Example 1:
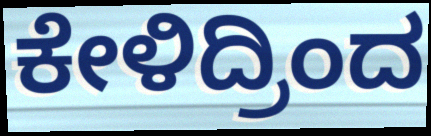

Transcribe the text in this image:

ಕೇಳಿದ್ರಿಂದ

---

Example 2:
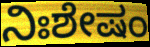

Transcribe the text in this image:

ನಿಃಶೇಷಂ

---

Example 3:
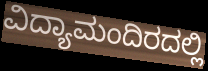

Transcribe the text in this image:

ವಿದ್ಯಾಮಂದಿರದಲ್ಲಿ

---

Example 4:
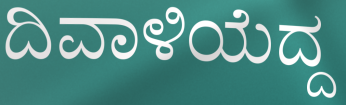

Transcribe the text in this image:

ದಿವಾಳಿಯೆದ್ದ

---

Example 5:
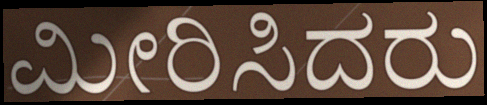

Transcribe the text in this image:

ಮೀರಿಸಿದರು